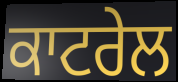
ਕਾਟਰੇਲ